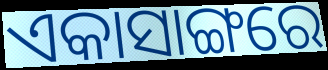
ଏକାସାଙ୍ଗରେ